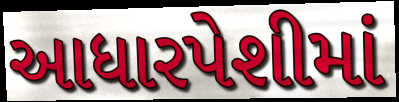
આધારપેશીમાં